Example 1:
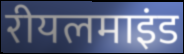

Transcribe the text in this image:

रीयलमाइंड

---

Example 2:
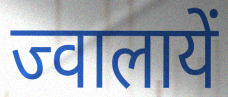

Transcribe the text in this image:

ज्वालायें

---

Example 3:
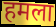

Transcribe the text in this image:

हमला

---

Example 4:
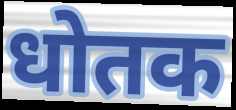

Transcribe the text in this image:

धोतक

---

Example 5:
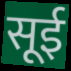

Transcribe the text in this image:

सूई